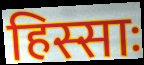
हिस्साः